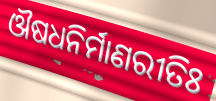
ଔଷଧନିର୍ମାଣରୀତିଃ